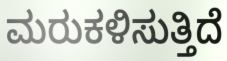
ಮರುಕಳಿಸುತ್ತಿದೆ